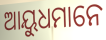
ଆୟୁଧମାନେ